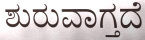
ಶುರುವಾಗ್ತದೆ